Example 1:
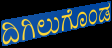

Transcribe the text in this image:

ದಿಗಿಲುಗೊಂಡ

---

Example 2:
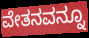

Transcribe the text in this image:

ವೇತನವನ್ನೂ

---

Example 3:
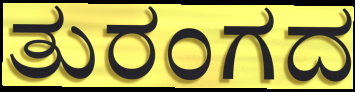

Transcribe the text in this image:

ತುರಂಗದ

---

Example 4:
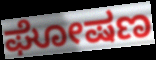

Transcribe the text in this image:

ಘೋಷಣ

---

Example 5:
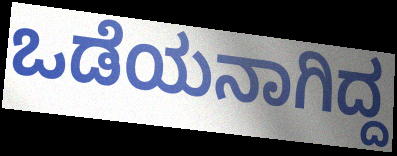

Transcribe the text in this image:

ಒಡೆಯನಾಗಿದ್ದ